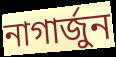
নাগাৰ্জুন